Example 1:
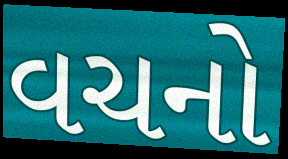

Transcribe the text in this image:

વચનો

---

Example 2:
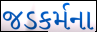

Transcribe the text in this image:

જડકર્મના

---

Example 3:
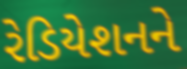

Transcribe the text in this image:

રેડિયેશનને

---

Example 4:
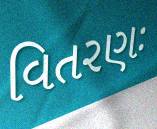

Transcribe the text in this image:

વિતરણઃ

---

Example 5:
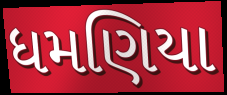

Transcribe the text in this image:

ધમણિયા